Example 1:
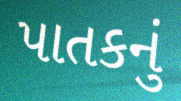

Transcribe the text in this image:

પાતકનું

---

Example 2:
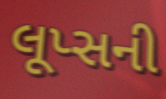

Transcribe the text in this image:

લૂપ્સની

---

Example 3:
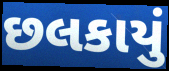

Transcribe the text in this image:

છલકાયું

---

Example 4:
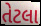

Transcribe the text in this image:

તેટલા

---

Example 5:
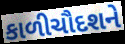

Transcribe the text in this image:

કાળીચૌદશને